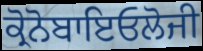
ਕ੍ਰੋਨੋਬਾਇਓਲੋਜੀ